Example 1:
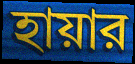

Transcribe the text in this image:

হায়ার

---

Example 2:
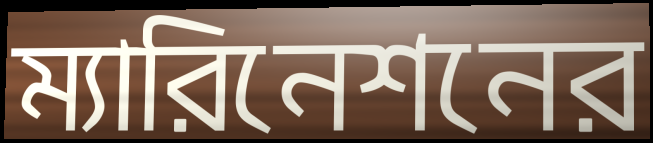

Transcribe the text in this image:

ম্যারিনেশনের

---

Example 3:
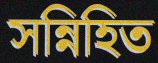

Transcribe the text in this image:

সন্নিহিত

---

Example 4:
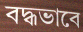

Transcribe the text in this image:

বদ্ধভাবে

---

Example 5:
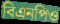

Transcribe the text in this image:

বিএনপিও